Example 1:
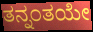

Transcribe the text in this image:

ತನ್ನಂತಯೇ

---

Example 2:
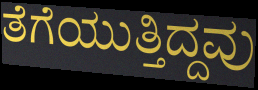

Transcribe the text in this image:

ತೆಗೆಯುತ್ತಿದ್ದವು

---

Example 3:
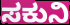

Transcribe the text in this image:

ಸಕುನಿ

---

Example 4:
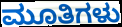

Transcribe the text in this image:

ಮೂತಿಗಳು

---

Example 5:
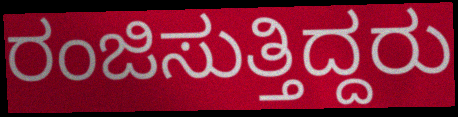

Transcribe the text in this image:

ರಂಜಿಸುತ್ತಿದ್ದರು